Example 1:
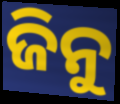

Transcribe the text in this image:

ଜିନୁ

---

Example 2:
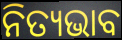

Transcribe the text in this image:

ନିତ୍ୟଭାବ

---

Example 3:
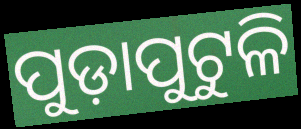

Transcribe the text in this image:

ପୁଡ଼ାପୁଟୁଳି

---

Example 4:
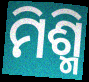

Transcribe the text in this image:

ମିଶ୍ମି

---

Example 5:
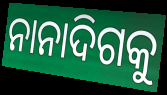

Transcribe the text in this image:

ନାନାଦିଗକୁ